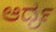
ಆರ್ಧ್ರ